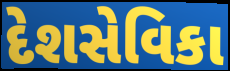
દેશસેવિકા